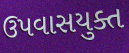
ઉપવાસયુક્ત